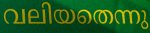
വലിയതെന്നു